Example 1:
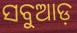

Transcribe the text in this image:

ସବୁଆଡ଼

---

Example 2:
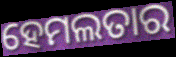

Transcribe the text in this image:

ହେମଲତାର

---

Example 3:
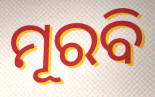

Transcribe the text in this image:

ମୂରବି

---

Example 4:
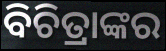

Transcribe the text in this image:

ବିଚିତ୍ରାଙ୍କର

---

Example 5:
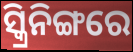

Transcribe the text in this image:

ସ୍କ୍ରିନିଙ୍ଗରେ